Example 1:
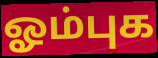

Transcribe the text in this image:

ஓம்புக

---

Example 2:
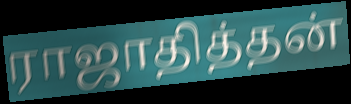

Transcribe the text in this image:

ராஜாதித்தன்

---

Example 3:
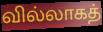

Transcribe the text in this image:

வில்லாகத்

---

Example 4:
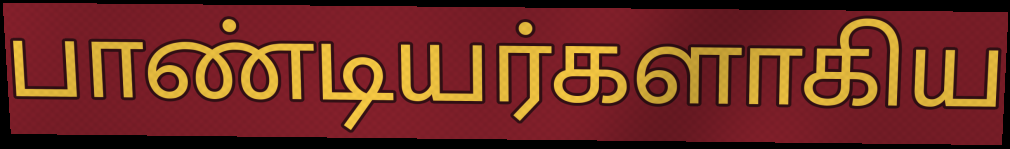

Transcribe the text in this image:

பாண்டியர்களாகிய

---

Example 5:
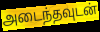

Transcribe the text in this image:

அடைந்தவுடன்